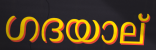
ഗദയാല്